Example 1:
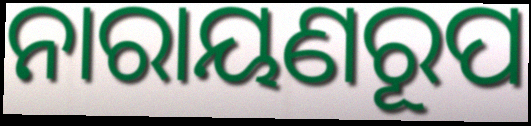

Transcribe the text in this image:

ନାରାୟଣରୂପ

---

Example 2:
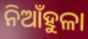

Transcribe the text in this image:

ନିଆଁହୁଳା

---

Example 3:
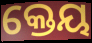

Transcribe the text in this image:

କ୍ତେୟ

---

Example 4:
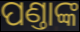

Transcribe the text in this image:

ପଣ୍ତାଙ୍କ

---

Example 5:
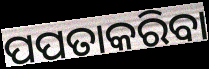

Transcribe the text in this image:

ପପତାକରିବା